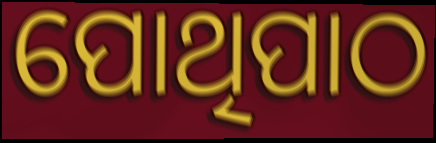
ପୋଥିପାଠ